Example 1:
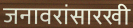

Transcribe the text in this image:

जनावरांसारखी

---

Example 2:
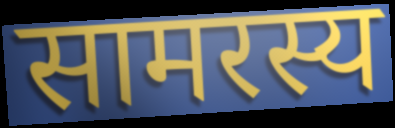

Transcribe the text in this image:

सामरस्य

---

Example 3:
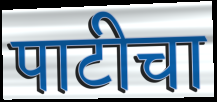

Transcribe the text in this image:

पाटीचा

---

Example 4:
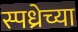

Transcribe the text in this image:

स्पध्रेच्या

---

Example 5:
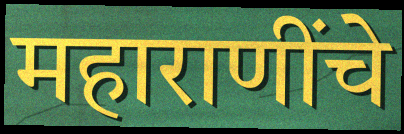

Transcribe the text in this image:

महाराणींचे